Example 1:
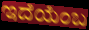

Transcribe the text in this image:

ಇದೆಯೆಂಬ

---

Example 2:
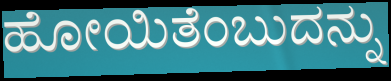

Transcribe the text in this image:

ಹೋಯಿತೆಂಬುದನ್ನು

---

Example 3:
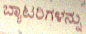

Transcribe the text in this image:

ಬ್ಯಾಟರಿಗಳನ್ನು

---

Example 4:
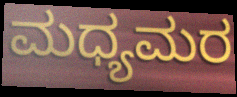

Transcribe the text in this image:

ಮಧ್ಯಮರ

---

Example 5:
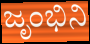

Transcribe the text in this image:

ಜೃಂಭಿನಿ